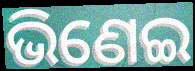
ଭିଣେଇ